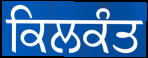
ਕਿਲਕੰਤ